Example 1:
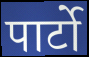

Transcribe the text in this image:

पार्टो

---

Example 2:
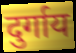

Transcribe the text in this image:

दुर्गाय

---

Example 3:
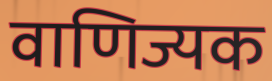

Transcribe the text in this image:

वाणिज्यक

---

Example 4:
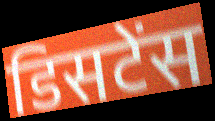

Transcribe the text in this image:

डिसटेंस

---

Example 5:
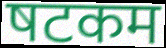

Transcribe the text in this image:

षटकम